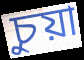
চুয়া